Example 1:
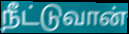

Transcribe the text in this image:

நீட்டுவான்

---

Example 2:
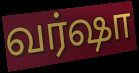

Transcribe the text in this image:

வர்ஷா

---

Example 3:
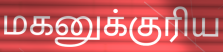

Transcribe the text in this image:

மகனுக்குரிய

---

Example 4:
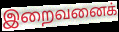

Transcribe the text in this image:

இறைவனைக்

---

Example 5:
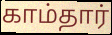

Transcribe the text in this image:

காம்தார்